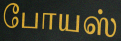
போயஸ்